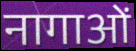
नागाओं